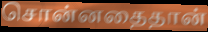
சொன்னதைதான்